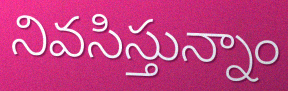
నివసిస్తున్నాం